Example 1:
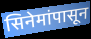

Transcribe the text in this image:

सिनेमांपासून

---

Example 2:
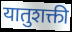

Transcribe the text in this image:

यातुशक्ती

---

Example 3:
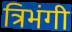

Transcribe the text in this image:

त्रिभंगी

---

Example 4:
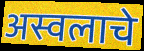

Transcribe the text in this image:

अस्वलाचे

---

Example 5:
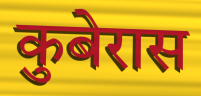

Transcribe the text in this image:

कुबेरास